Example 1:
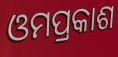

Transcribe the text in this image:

ଓମପ୍ରକାଶ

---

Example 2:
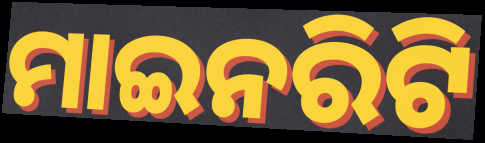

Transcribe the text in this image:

ମାଇନରିଟି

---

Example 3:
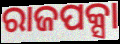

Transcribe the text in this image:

ରାଜପକ୍ସା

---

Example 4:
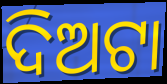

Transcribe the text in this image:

ଦିଅଟା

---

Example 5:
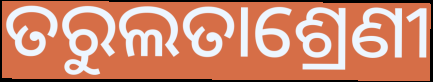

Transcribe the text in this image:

ତରୁଲତାଶ୍ରେଣୀ